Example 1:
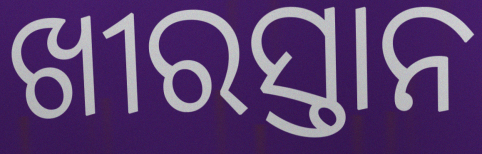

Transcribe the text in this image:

ଖୀରସ୍ତାନ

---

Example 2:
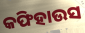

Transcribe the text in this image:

କଫିହାଉସ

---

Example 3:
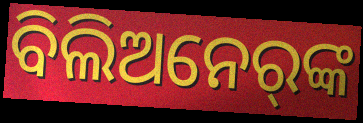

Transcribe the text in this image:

ବିଲିଅନେର୍‌ଙ୍କ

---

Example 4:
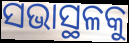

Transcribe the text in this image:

ସଭାସ୍ଥଳକୁ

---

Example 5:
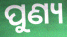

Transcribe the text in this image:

ପୁଣ୍ୟ